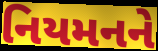
નિયમનને